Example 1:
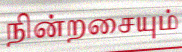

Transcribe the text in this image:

நின்றசையும்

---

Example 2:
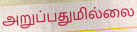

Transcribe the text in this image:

அறுப்பதுமில்லை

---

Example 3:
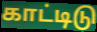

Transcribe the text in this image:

காட்டிடு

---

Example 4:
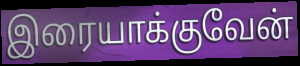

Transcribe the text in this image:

இரையாக்குவேன்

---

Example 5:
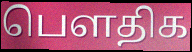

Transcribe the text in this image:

பௌதிக